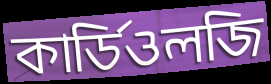
কার্ডিওলজি